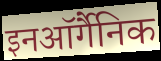
इनऑर्गैनिक